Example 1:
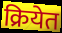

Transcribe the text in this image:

क्रियेत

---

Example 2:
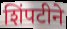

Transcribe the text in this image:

शिंपटीने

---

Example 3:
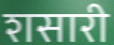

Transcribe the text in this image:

शसारी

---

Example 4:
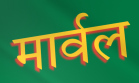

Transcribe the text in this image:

मार्वल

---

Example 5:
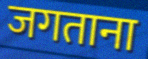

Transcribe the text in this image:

जगताना